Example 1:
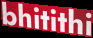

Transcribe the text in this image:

bhitithi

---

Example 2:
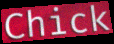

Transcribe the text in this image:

Chick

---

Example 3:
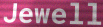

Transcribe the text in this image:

Jewell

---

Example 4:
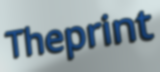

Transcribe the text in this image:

Theprint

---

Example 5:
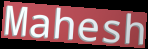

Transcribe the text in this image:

Mahesh